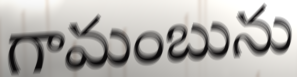
గామంబును